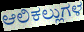
ಆಲಿಕಲ್ಲುಗಳ